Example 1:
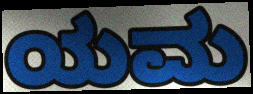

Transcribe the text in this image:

ಯಮ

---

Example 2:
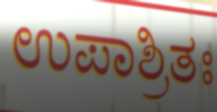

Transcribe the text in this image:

ಉಪಾಶ್ರಿತಃ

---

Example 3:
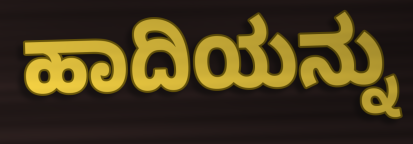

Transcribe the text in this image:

ಹಾದಿಯನ್ನು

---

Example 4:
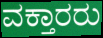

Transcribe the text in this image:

ವಕ್ತಾರರು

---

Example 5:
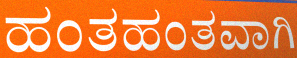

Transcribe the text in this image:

ಹಂತಹಂತವಾಗಿ